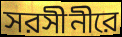
সরসীনীরে